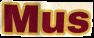
Mus